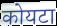
कोयटा